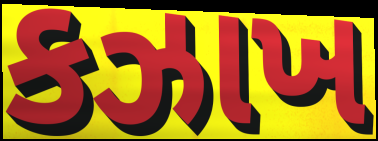
કઝાખ